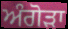
ਅੰਗੋੜਾ